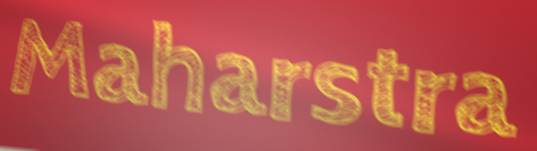
Maharstra